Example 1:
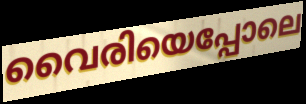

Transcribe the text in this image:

വൈരിയെപ്പോലെ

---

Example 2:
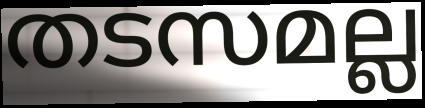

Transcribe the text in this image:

തടസമല്ല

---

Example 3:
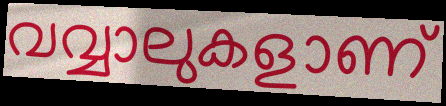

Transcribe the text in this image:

വവ്വാലുകളാണ്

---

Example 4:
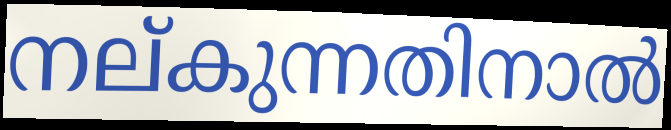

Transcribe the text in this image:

നല്കുന്നതിനാൽ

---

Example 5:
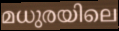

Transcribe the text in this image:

മധുരയിലെ